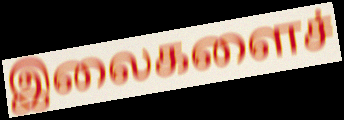
இலைகளைச்